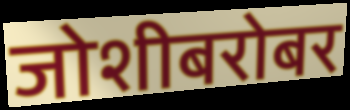
जोशीबरोबर